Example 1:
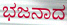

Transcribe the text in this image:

ಭಜನಾದ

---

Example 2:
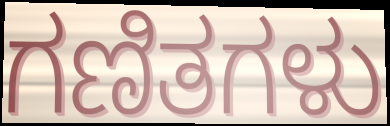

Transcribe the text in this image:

ಗಣಿತಗಳು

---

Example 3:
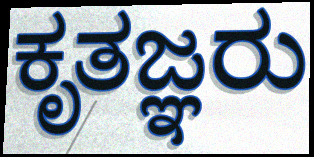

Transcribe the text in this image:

ಕೃತಜ್ಞರು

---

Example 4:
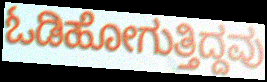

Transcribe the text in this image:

ಓಡಿಹೋಗುತ್ತಿದ್ದವು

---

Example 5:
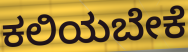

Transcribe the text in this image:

ಕಲಿಯಬೇಕೆ